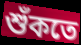
শুঁকতে